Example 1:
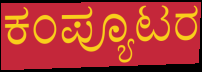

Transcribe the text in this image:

ಕಂಪ್ಯೂಟರ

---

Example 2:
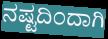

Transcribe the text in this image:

ನಷ್ಟದಿಂದಾಗಿ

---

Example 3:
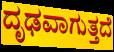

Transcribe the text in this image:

ದೃಢವಾಗುತ್ತದೆ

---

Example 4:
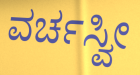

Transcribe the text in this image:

ವರ್ಚಸ್ವೀ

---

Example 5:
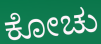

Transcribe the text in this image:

ಕೋಚು